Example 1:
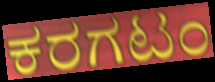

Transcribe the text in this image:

ಕರಗಟಂ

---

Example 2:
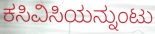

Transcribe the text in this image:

ಕಸಿವಿಸಿಯನ್ನುಂಟು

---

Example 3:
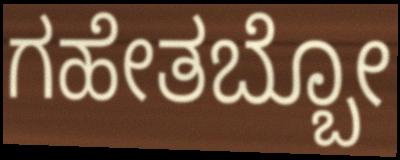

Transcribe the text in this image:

ಗಹೇತಬ್ಬೋ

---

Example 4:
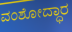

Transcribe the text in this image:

ವಂಶೋದ್ಧಾರ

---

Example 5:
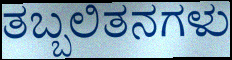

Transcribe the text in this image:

ತಬ್ಬಲಿತನಗಳು